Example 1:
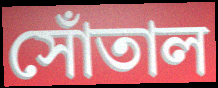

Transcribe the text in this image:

সোঁতাল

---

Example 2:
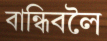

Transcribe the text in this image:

বান্ধিবলৈ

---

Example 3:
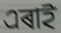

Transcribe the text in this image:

এৰাই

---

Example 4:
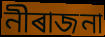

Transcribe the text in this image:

নীৰাজনা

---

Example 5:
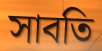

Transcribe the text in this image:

সাবতি